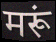
मरूं